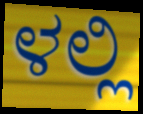
ಳಲ್ಲಿ